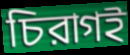
চিরাগই